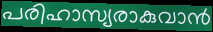
പരിഹാസ്യരാകുവാൻ